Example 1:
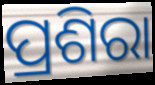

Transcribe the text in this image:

ପ୍ରଶିରା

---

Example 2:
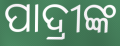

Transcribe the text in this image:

ପାଦ୍ରୀଙ୍କ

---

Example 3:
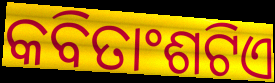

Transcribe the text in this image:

କବିତାଂଶଟିଏ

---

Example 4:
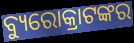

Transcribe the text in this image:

ବ୍ୟୁରୋକ୍ରାଟଙ୍କର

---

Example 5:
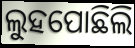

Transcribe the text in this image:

ଲୁହପୋଛିଲି